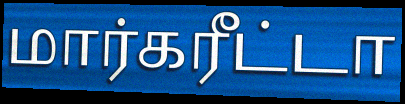
மார்கரீட்டா